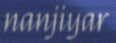
nanjiyar